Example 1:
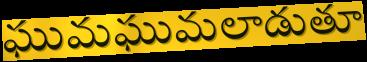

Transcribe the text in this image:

ఘుమఘుమలాడుతూ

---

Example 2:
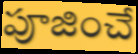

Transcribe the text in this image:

పూజించే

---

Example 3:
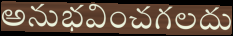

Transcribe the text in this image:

అనుభవించగలదు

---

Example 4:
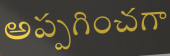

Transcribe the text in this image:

అప్పగించగా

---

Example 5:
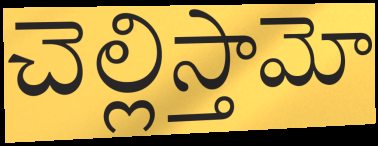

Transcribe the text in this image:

చెల్లిస్తామో